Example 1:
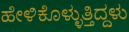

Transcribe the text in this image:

ಹೇಳಿಕೊಳ್ಳುತ್ತಿದ್ದಳು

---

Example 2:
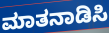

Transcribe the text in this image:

ಮಾತನಾಡಿಸಿ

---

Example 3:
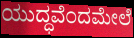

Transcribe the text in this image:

ಯುದ್ಧವೆಂದಮೇಲೆ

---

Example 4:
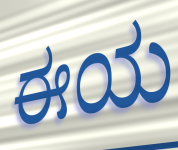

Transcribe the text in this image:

ಈಯ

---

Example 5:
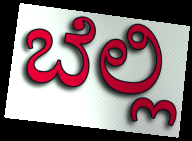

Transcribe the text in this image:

ಬೆಲ್ಲಿ